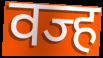
वज्ह